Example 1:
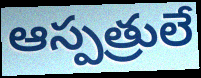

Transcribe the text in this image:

ఆస్పత్రులే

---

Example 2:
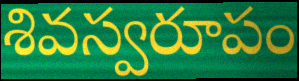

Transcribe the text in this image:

శివస్వరూపం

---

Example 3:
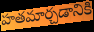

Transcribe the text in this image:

హతమార్చడానికి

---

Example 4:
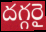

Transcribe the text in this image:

దగ్గరై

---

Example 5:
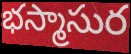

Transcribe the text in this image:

భస్మాసుర